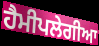
ਹੈਮੀਪਲੇਗੀਆ